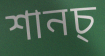
শানচ্